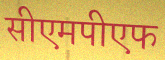
सीएमपीएफ